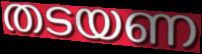
തടയണ